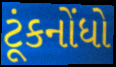
ટૂંકનોંધો